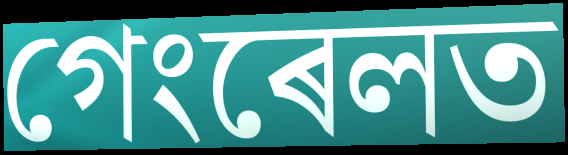
গেংৰেলত